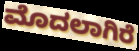
ಮೊದಲಾಗಿರೆ